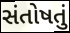
સંતોષતું